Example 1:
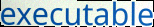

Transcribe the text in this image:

executable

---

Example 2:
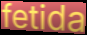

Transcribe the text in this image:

fetida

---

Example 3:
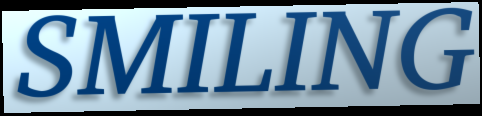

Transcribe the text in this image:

SMILING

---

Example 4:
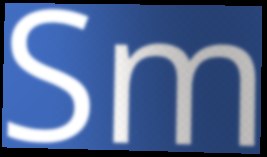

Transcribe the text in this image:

Sm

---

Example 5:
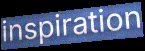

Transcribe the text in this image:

inspiration